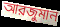
আরজুমান